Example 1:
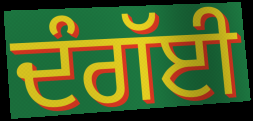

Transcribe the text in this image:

ਦੰਗੱਈ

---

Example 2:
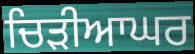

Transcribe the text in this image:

ਚਿੜੀਆਘਰ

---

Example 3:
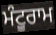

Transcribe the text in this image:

ਮੰਟੂਰਾਮ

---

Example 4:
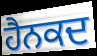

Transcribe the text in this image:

ਹੈਨਕਦ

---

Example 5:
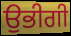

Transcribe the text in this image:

ਉਭੀਗੀ